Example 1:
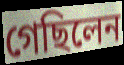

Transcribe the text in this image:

গেছিলেন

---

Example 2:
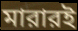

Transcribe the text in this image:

মারারই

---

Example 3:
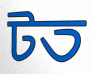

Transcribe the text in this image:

টত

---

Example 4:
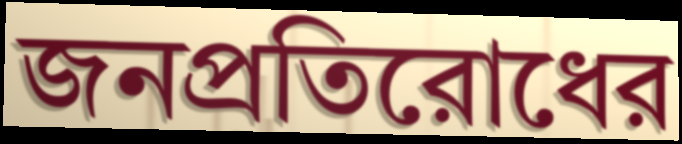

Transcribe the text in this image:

জনপ্রতিরোধের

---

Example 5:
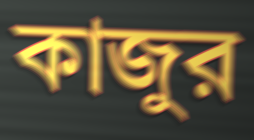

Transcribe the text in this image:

কাজুর